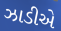
ઝાડીએ